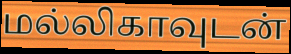
மல்லிகாவுடன்